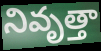
నివృత్తా